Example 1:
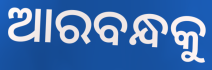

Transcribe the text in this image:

ଆରବନ୍ଧକୁ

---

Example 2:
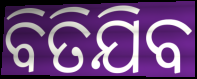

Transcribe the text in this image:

ବିତିଯିବ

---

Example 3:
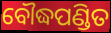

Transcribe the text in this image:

ବୌଦ୍ଧପଣ୍ଡିତ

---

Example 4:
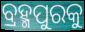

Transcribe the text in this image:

ବ୍ରହ୍ମପୁରକୁ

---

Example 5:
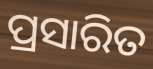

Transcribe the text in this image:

ପ୍ରସାରିତ